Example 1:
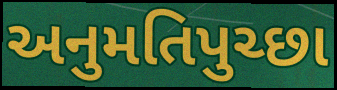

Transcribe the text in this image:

અનુમતિપુચ્છા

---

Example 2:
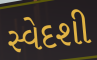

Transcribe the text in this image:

સ્વેદશી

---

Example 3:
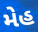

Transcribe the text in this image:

મેહ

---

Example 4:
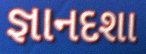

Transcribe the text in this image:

જ્ઞાનદશા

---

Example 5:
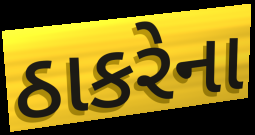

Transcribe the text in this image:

ઠાકરેના